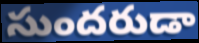
సుందరుడా